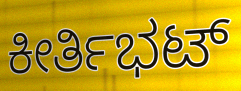
ಕೀರ್ತಿಭಟ್